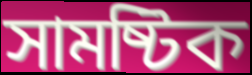
সামষ্টিক